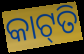
କାଟ୍‍ତି